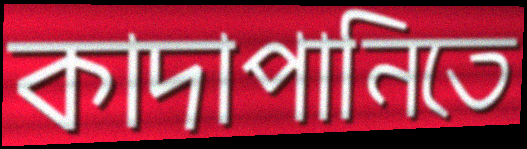
কাদাপানিতে